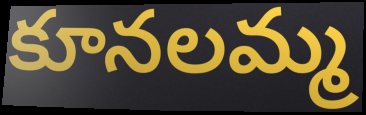
కూనలమ్మ